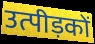
उत्पीड़कों